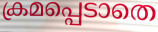
ക്രമപ്പെടാതെ